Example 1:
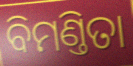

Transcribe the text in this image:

ବିମଣ୍ତିତା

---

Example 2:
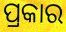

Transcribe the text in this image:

ପ୍ରକାର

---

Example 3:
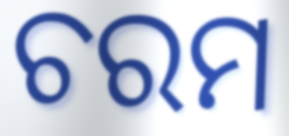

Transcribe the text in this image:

ଚରମ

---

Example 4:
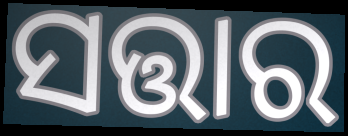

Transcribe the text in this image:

ସତ୍ତାର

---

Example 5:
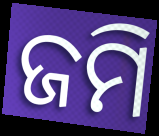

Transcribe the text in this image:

ଜମି